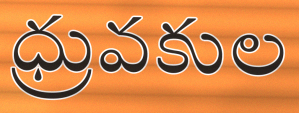
ధ్రువకుల